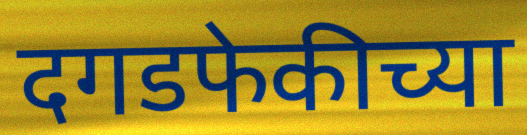
दगडफेकीच्या